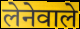
लेनेवाले